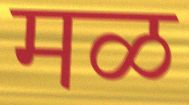
मळ